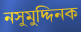
নসুমুদ্দিনক